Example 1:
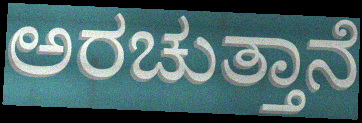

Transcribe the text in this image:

ಅರಚುತ್ತಾನೆ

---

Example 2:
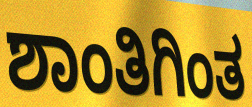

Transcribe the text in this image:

ಶಾಂತಿಗಿಂತ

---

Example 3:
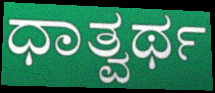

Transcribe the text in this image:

ಧಾತ್ವರ್ಥ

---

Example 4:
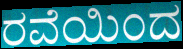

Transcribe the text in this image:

ರವೆಯಿಂದ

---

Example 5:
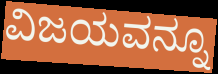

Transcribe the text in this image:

ವಿಜಯವನ್ನೂ